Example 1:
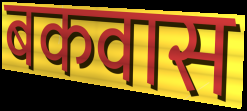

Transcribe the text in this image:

बकवास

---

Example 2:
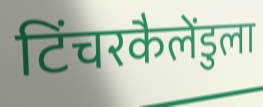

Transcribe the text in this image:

टिंचरकैलेंडुला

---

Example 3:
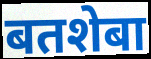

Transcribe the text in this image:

बतशेबा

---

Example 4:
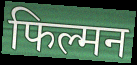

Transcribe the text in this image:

फिल्मन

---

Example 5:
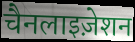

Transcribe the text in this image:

चैनलाइज़ेशन